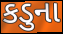
કડુના